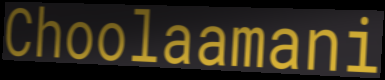
Choolaamani